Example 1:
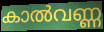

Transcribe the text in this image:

കാൽവണ്ണ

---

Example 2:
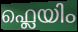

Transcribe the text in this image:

ഫ്ലെയിം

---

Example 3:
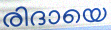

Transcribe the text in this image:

രിദായെ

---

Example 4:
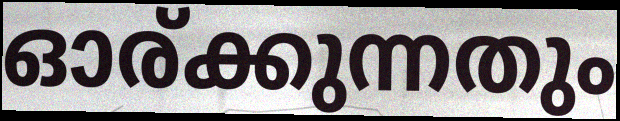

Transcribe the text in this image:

ഓര്ക്കുന്നതും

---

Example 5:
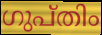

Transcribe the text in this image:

ഗുപ്തിം